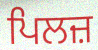
ਪਿਲਜ਼